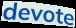
devote